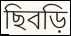
ছিবড়ি